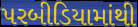
પરબીડિયામાંથી